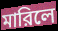
মারিলে